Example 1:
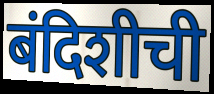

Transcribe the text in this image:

बंदिशीची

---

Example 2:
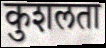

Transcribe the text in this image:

कुशलता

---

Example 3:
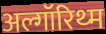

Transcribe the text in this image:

अल्गॉरिथ्म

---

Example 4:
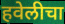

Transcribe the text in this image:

हवेलीचा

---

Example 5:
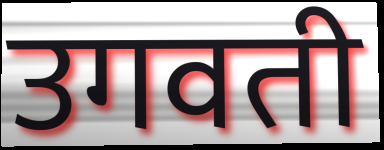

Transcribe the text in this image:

उगवती